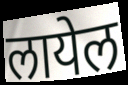
लायेल